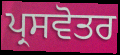
ਪ੍ਰਸਵੋਤਰ